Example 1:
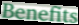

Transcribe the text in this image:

Benefits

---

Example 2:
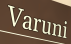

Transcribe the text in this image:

Varuni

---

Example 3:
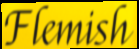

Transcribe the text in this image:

Flemish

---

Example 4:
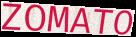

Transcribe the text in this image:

ZOMATO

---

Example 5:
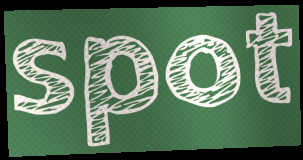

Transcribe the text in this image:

spot